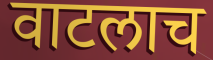
वाटलाच